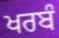
ਖਰਬੰ